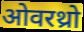
ओवरथ्रो